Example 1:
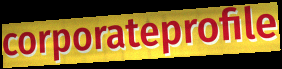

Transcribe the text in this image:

corporateprofile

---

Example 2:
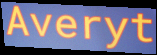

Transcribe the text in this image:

Averyt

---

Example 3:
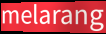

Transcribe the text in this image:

melarang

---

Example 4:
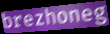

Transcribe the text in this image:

brezhoneg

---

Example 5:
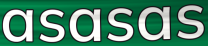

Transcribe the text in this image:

asasas